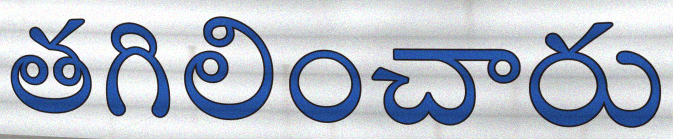
తగిలించారు